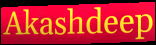
Akashdeep